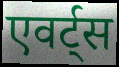
एवर्ट्स